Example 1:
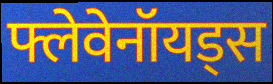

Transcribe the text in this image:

फ्लेवेनॉयड्स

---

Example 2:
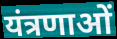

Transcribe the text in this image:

यंत्रणाओं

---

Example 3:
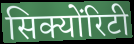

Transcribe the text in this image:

सिक्योंरिटी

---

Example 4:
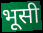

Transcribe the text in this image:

भूसी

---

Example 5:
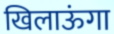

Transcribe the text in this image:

खिलाऊंगा